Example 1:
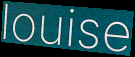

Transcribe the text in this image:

louise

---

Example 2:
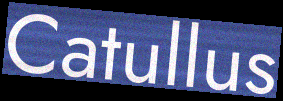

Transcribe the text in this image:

Catullus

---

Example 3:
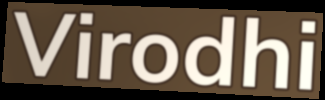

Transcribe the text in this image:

Virodhi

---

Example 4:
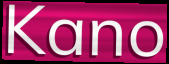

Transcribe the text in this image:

Kano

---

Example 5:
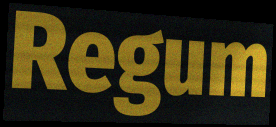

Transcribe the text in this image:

Regum